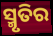
ସ୍ମୃତିର